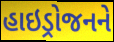
હાઇડ્રોજનને